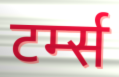
टर्म्स